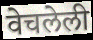
वेचलेली